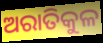
ଅରାତିକୁଳ